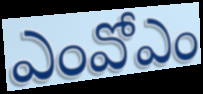
ఎంవోఎం